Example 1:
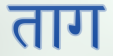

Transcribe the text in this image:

ताग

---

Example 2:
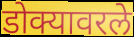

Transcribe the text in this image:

डोक्यावरले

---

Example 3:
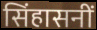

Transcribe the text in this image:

सिंहासनीं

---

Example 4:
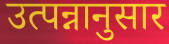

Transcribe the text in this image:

उत्पन्नानुसार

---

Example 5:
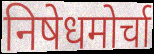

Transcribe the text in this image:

निषेधमोर्चा